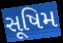
સૂષિમ